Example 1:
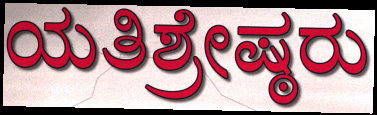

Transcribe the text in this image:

ಯತಿಶ್ರೇಷ್ಠರು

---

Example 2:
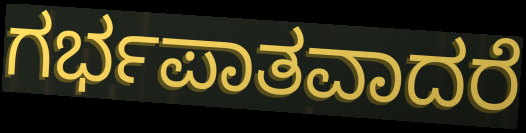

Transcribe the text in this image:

ಗರ್ಭಪಾತವಾದರೆ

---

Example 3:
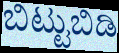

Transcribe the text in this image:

ಬಿಟ್ಟುಬಿಡಿ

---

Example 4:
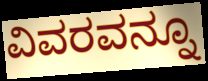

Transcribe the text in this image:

ವಿವರವನ್ನೂ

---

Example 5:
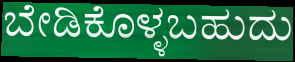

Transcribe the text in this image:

ಬೇಡಿಕೊಳ್ಳಬಹುದು